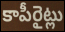
కాపీరైట్లు